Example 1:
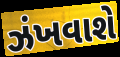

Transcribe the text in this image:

ઝંખવાશે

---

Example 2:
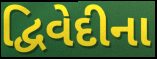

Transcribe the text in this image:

દ્વિવેદીના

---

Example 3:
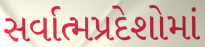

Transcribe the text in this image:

સર્વાત્મપ્રદેશોમાં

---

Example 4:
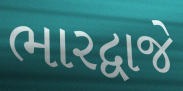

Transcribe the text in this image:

ભારદ્વાજે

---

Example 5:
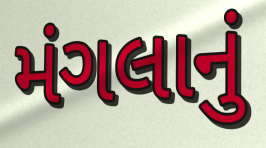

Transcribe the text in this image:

મંગલાનું